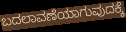
ಬದಲಾವಣೆಯಾಗುವುದಕ್ಕೆ